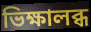
ভিক্ষালব্ধ